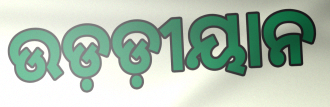
ଉଡ଼ଡ଼ୀୟାନ